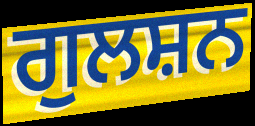
ਗੁਲਸ਼ਨ